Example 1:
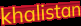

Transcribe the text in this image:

khalistan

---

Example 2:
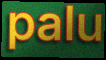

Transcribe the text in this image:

palu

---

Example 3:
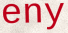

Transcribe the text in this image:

eny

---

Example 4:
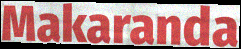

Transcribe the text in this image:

Makaranda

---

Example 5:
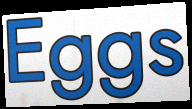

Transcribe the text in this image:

Eggs